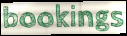
bookings